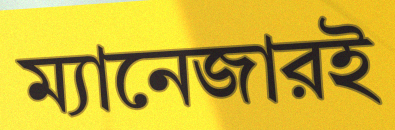
ম্যানেজারই